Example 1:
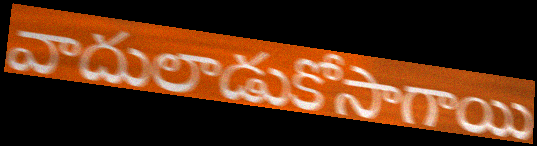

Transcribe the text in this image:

వాదులాడుకోసాగాయి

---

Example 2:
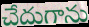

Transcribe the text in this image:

చేదుగాను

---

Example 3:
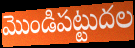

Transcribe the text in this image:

మొండిపట్టుదల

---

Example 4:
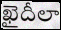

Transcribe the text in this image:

ఖైదీలా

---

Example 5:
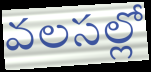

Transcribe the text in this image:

వలసల్లో